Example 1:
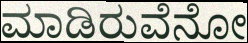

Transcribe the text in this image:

ಮಾಡಿರುವೆನೋ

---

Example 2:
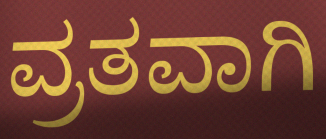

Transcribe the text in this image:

ವ್ರತವಾಗಿ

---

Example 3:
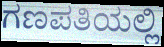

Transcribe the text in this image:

ಗಣಪತಿಯಲ್ಲಿ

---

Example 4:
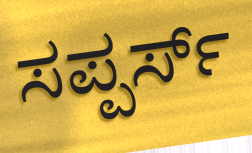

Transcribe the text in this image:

ಸಪ್ಪರ್ಸ್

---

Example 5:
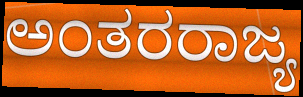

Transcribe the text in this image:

ಅಂತರರಾಜ್ಯ